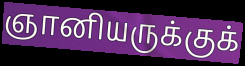
ஞானியருக்குக்